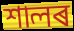
শালৰ